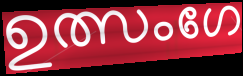
ഉത്സംഗേ